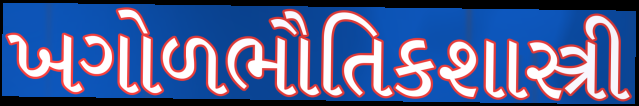
ખગોળભૌતિકશાસ્ત્રી